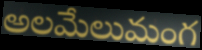
అలమేలుమంగ